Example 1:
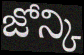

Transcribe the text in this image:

జోన్కి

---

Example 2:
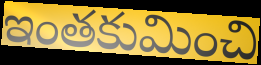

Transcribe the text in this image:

ఇంతకుమించి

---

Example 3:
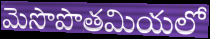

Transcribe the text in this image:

మెసొపొతమియలో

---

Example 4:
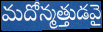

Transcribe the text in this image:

మదోన్మత్తుడవై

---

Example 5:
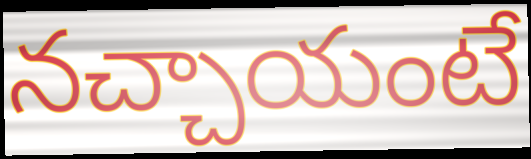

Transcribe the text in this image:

నచ్చాయంటే